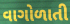
વાગોળાતી